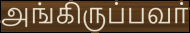
அங்கிருப்பவர்